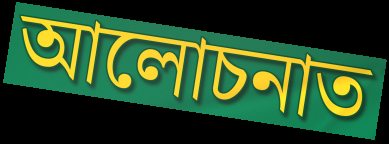
আলোচনাত